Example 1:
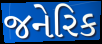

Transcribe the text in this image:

જનેરિક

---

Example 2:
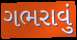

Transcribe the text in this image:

ગભરાવું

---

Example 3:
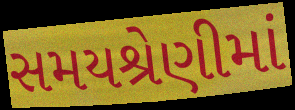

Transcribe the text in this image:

સમયશ્રેણીમાં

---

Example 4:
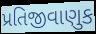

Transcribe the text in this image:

પ્રતિજીવાણુક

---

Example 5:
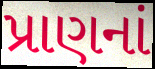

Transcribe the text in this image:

પ્રાણનાં